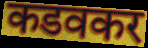
कडवकर